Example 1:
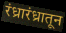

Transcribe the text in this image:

रंध्रारंध्रातून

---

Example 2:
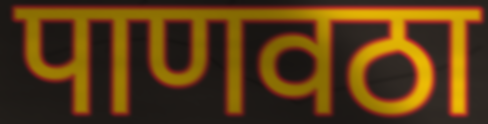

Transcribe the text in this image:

पाणवठा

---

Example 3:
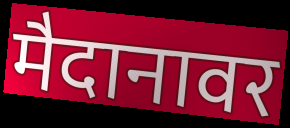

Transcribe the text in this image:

मैदानावर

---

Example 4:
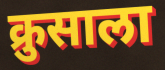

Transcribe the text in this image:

क्रुसाला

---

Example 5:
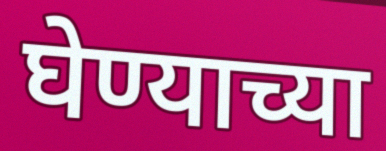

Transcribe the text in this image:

घेण्याच्या